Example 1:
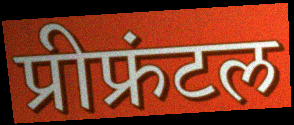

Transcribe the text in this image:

प्रीफ्रंटल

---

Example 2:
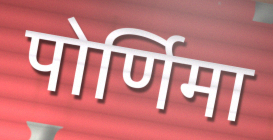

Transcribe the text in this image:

पोर्णिमा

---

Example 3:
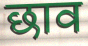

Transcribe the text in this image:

छाव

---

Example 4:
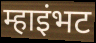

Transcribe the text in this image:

म्हाइंभट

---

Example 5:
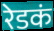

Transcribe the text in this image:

रेडकं